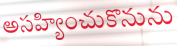
అసహ్యించుకొనును